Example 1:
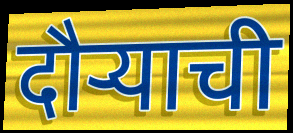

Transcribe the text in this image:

दौर्‍याची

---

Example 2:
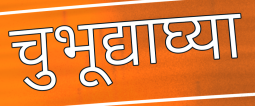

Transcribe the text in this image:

चुभूद्याघ्या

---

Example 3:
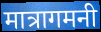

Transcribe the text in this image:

मात्रागमनी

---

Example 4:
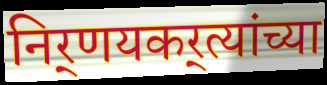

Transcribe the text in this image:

निर्णयकर्त्यांच्या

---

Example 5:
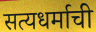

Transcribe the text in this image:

सत्यधर्माची